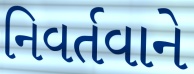
નિવર્તવાને